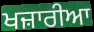
ਖਜ਼ਾਰੀਆ